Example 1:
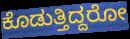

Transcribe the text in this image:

ಕೊಡುತ್ತಿದ್ದರೋ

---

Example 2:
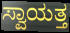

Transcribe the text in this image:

ಸ್ವಾಯತ್ತ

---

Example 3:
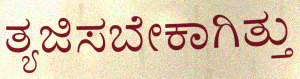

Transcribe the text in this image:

ತ್ಯಜಿಸಬೇಕಾಗಿತ್ತು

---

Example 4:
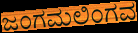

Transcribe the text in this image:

ಜಂಗಮಲಿಂಗವ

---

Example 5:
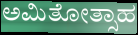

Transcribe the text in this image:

ಅಮಿತೋತ್ಸಾಹ